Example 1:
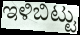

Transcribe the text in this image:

ಇಳಿಬಿಟ್ಟು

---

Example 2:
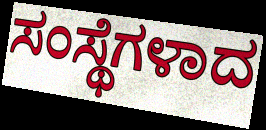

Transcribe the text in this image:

ಸಂಸ್ಥೆಗಳಾದ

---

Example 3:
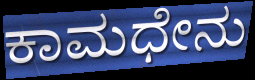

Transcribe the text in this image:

ಕಾಮಧೇನು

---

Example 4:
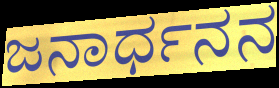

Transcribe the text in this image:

ಜನಾರ್ಧನನ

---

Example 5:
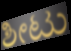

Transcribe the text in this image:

ಶೀಟು